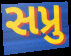
સપ્રુ